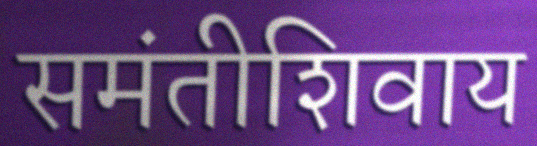
समंतीशिवाय